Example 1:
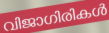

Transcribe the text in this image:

വിജാഗിരികൾ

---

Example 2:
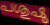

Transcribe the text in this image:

പശുഷു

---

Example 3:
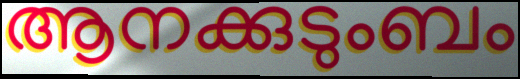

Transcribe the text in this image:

ആനക്കുടുംബം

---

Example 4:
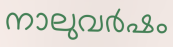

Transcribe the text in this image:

നാലുവർഷം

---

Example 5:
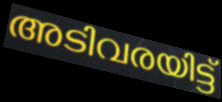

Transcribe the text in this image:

അടിവരയിട്ട്